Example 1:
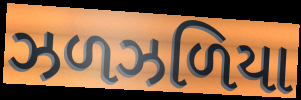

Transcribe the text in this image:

ઝળઝળિયા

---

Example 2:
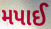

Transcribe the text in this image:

મપાઈ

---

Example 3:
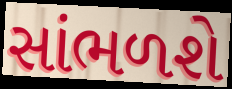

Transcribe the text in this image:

સાંભળશે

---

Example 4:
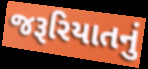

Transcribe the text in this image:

જરૂરિયાતનું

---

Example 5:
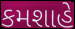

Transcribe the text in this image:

કમશાહે